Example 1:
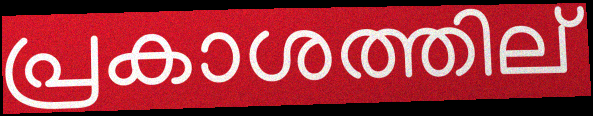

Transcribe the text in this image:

പ്രകാശത്തില്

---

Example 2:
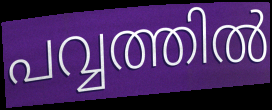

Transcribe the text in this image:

പവ്വത്തിൽ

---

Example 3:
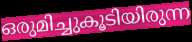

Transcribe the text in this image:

ഒരുമിച്ചുകൂടിയിരുന്ന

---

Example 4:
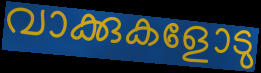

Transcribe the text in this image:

വാക്കുകളോടു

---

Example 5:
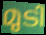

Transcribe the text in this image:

മുടി